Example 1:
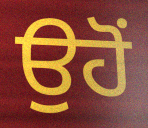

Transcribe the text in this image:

ਉਹੋਂ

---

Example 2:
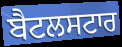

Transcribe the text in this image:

ਬੈਟਲਸਟਾਰ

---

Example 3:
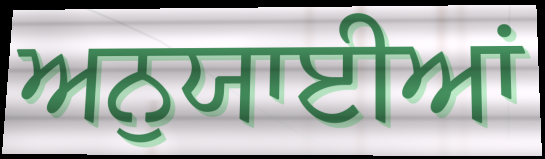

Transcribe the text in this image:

ਅਨੁਯਾਈਆਂ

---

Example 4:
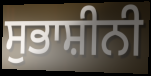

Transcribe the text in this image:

ਸੁਭਾਸ਼ੀਨੀ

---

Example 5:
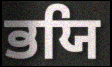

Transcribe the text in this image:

ਭਯਿ